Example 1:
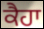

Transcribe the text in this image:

ਕੈਹਾ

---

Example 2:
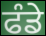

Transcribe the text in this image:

ਫੰਡੇ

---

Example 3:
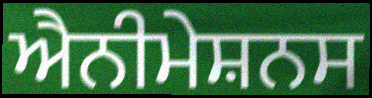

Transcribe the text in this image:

ਐਨੀਮੇਸ਼ਨਸ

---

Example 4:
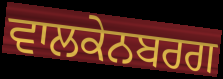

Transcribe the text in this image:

ਵਾਲਕੇਨਬਰਗ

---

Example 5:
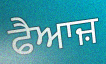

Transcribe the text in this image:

ਫੈਆਜ਼